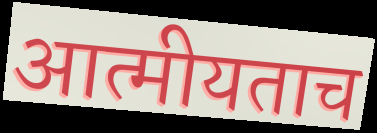
आत्मीयताच